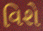
વિશે